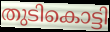
തുടികൊട്ടി